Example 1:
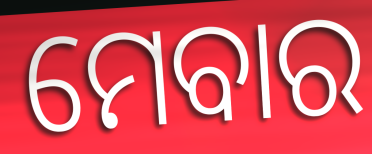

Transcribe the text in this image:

ମେବାର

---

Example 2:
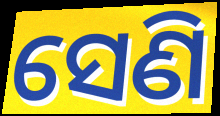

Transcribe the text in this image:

ସେଣି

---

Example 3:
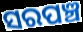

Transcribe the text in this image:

ସରପଞ୍ଚ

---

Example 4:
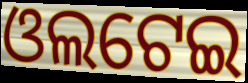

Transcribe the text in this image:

ଓଲଟେଇ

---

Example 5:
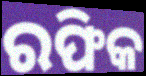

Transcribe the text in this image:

ରଫିକ